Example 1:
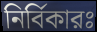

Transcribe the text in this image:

নির্বিকারঃ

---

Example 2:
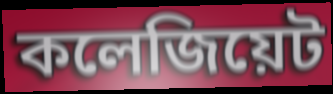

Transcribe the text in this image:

কলেজিয়েট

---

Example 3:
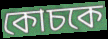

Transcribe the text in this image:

কোচকে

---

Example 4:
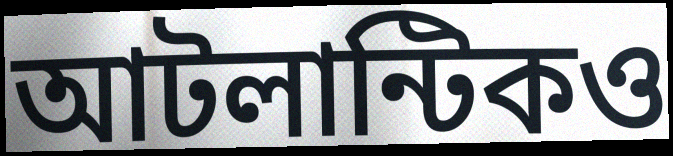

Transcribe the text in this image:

আটলান্টিকও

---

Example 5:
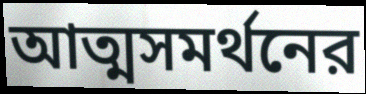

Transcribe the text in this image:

আত্মসমর্থনের